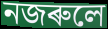
নজৰুলে